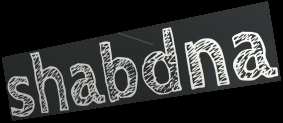
shabdna